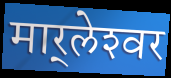
मार्लेश्वर